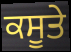
ਕਸੂਤੇ